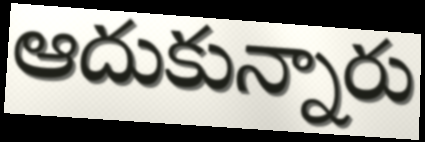
ఆదుకున్నారు